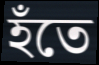
হঁতে